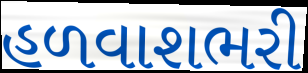
હળવાશભરી